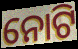
ନୋଟି